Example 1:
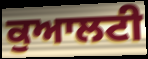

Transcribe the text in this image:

ਕੁਆਲਟੀ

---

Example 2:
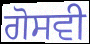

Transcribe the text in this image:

ਗੋਸਵੀ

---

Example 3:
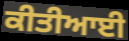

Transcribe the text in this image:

ਕੀਤੀਆਈ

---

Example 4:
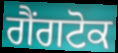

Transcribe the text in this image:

ਗੈਂਗਟੋਕ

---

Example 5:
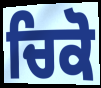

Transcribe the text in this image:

ਚਿਕੋ